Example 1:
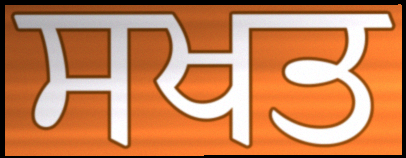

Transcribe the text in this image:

ਸਖਤ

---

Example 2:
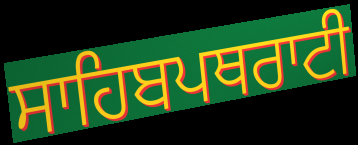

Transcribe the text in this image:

ਸਾਹਿਬਪਥਰਾਟੀ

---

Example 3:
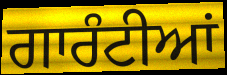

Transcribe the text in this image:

ਗਾਰੰਟੀਆਂ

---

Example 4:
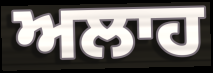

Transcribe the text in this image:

ਅਲਾਹ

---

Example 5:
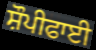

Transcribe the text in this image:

ਸ਼ੌਪੀਫਾਈ